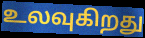
உலவுகிறது